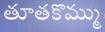
తూతకొమ్ము